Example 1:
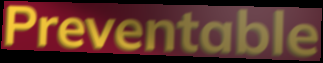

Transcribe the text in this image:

Preventable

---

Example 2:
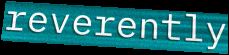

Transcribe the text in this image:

reverently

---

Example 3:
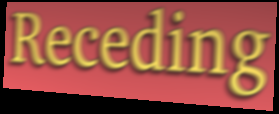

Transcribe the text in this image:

Receding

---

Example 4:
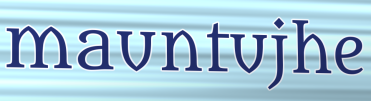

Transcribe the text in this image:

mauntujhe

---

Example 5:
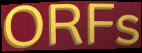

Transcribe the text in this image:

ORFs